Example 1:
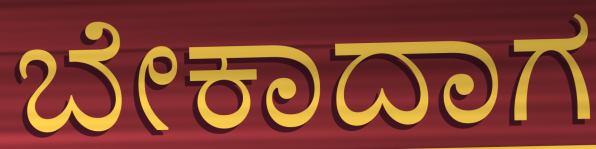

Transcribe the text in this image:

ಬೇಕಾದಾಗ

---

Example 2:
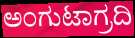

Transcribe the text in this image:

ಅಂಗುಟಾಗ್ರದಿ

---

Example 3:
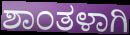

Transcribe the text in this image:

ಶಾಂತಳಾಗಿ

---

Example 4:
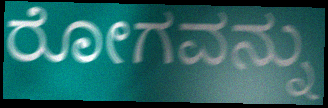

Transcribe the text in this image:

ರೋಗವನ್ನು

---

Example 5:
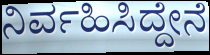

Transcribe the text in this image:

ನಿರ್ವಹಿಸಿದ್ದೇನೆ